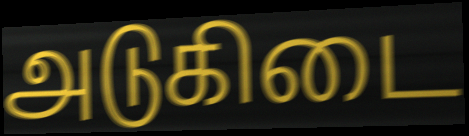
அடுகிடை